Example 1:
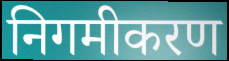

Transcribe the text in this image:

निगमीकरण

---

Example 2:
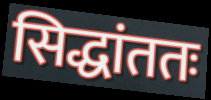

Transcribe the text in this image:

सिद्धांततः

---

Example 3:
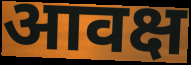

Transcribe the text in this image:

आवक्ष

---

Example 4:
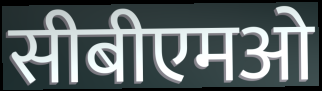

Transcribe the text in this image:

सीबीएमओ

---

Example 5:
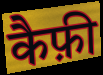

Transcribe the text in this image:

कैफ़ी